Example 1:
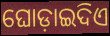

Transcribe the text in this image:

ଘୋଡ଼ାଇଦିଏ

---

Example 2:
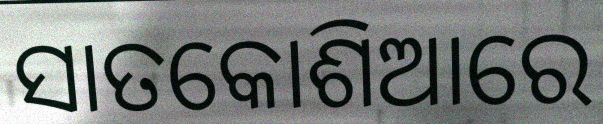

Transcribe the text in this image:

ସାତକୋଶିଆରେ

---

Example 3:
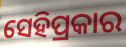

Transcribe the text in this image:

ସେହିପ୍ରକାର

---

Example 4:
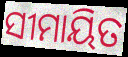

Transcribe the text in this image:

ସୀମାୟିତ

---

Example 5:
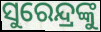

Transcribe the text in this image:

ସୁରେନ୍ଦ୍ରଙ୍କୁ